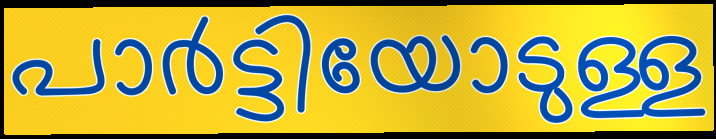
പാർട്ടിയോടുള്ള